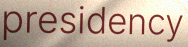
presidency